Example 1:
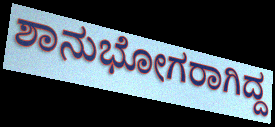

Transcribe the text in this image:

ಶಾನುಭೋಗರಾಗಿದ್ದ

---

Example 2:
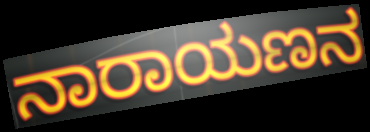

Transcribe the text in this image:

ನಾರಾಯಣನ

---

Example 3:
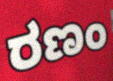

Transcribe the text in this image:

ರಣಂ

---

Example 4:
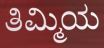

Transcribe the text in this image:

ತಿಮ್ಮಿಯ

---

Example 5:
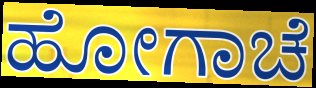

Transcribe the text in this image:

ಹೋಗಾಚೆ